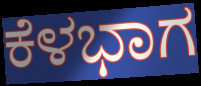
ಕೆಳಭಾಗ